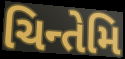
ચિન્તેમિ